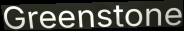
Greenstone